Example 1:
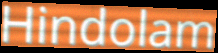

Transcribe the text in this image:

Hindolam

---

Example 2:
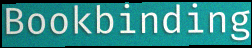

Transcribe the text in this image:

Bookbinding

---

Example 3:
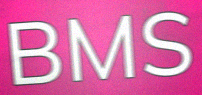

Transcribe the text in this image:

BMS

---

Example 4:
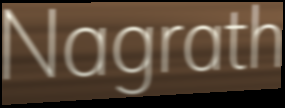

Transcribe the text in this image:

Nagrath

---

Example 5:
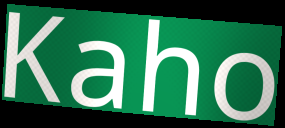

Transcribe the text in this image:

Kaho